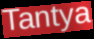
Tantya